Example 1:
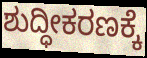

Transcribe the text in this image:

ಶುದ್ಧೀಕರಣಕ್ಕೆ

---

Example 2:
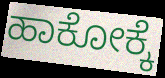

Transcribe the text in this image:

ಹಾಕೋಕ್ಕೆ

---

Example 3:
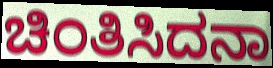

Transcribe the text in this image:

ಚಿಂತಿಸಿದನಾ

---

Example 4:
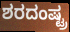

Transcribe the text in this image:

ಶರದಂಷ್ಟ್ರ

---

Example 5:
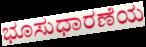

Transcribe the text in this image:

ಭೂಸುಧಾರಣೆಯ